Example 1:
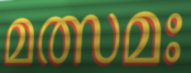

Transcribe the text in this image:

മത്സമഃ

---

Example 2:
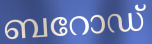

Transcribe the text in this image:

ബറോഡ്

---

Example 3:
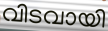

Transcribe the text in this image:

വിടവായി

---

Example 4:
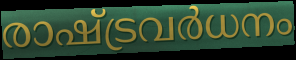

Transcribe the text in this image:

രാഷ്ട്രവർധനം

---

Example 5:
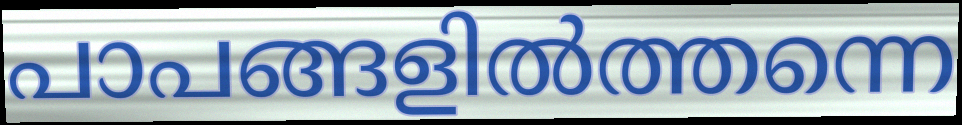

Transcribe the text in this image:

പാപങ്ങളിൽത്തന്നെ